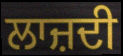
ਲਾਜ਼ਦੀ